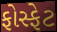
ફોસ્ફેટ